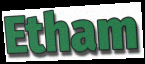
Etham